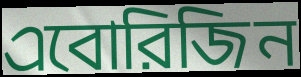
এবোরিজিন